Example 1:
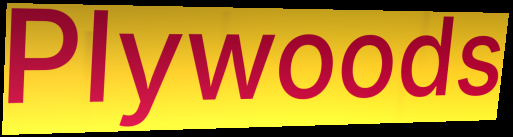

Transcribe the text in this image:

Plywoods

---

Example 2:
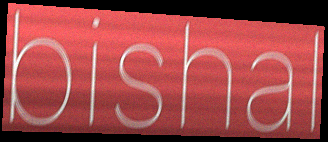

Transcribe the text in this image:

bishal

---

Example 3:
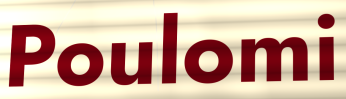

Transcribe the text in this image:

Poulomi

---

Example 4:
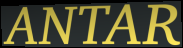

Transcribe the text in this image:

ANTAR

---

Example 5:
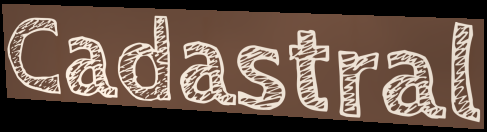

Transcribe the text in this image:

Cadastral